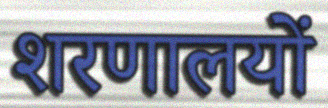
शरणालयों